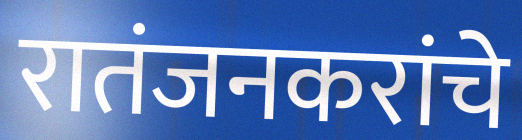
रातंजनकरांचे